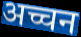
अच्चन